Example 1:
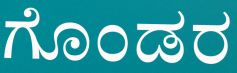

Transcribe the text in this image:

ಗೊಂಡರ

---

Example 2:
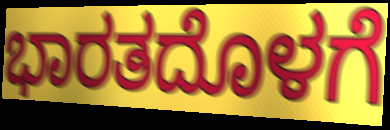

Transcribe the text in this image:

ಭಾರತದೊಳಗೆ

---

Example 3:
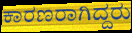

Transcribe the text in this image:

ಕಾರಣರಾಗಿದ್ದರು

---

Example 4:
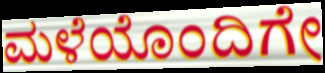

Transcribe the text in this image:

ಮಳೆಯೊಂದಿಗೇ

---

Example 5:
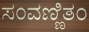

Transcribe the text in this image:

ಸಂವಣ್ಣಿತಂ